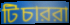
টিচাররা